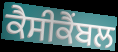
ਕੈਸੀਕੈਂਬਲ